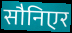
सौनिएर